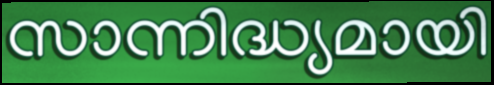
സാന്നിദ്ധ്യമായി